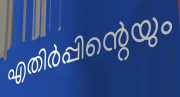
എതിർപ്പിന്റെയും